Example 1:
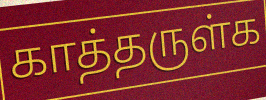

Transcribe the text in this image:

காத்தருள்க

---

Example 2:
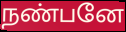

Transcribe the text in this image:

நண்பனே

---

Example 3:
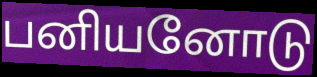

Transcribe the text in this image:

பனியனோடு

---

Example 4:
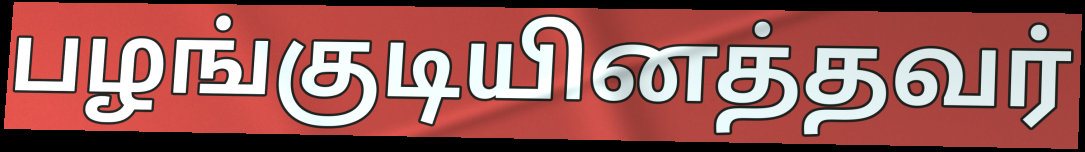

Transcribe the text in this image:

பழங்குடியினத்தவர்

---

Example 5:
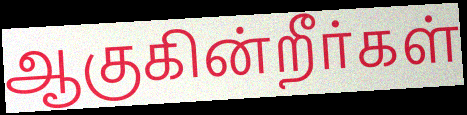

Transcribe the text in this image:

ஆகுகின்றீர்கள்